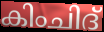
കിംചിദ്